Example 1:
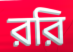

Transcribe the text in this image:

ররি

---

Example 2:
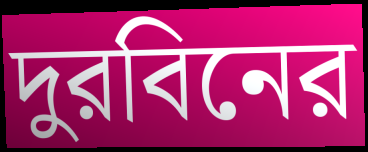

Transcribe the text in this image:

দুরবিনের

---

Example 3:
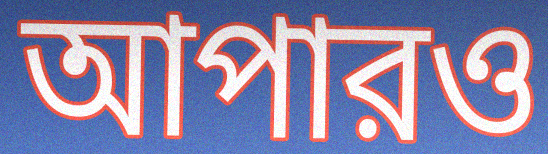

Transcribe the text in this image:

আপারও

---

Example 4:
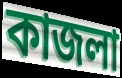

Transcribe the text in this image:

কাজলা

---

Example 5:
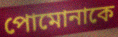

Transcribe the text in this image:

পোমোনাকে